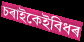
চৰাইকেইবিধৰ